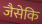
जैसेकि